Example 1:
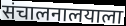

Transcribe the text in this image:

संचालनालयाला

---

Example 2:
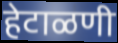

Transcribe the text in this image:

हेटाळणी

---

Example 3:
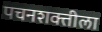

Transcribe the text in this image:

पचनशक्तीला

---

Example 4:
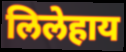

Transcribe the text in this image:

लिलेहाय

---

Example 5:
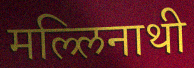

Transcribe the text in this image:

मल्लिनाथी